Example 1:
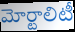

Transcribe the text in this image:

మోర్టాలిటీ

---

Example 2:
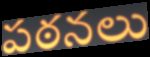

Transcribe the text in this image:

పఠనలు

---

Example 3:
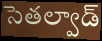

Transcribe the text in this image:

సెతల్వాడ్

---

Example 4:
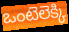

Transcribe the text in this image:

ఒంటెలెక్కి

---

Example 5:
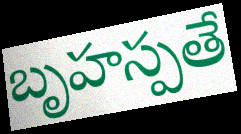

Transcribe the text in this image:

బృహస్పతే